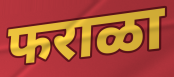
फराळा